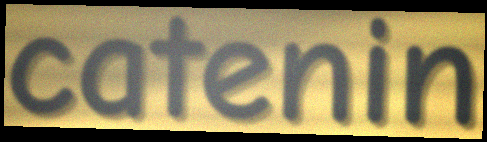
catenin